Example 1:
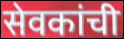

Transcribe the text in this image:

सेवकांची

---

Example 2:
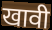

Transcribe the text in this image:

खावी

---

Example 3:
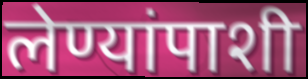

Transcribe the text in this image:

लेण्यांपाशी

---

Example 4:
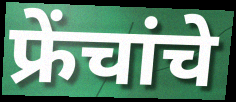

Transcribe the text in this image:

फ्रेंचांचे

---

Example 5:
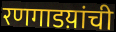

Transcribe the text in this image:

रणगाडय़ांची